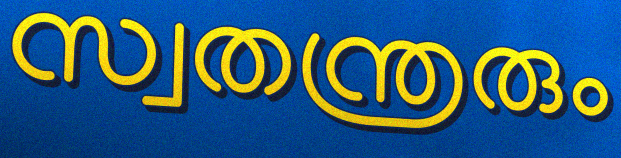
സ്വതന്ത്രരും